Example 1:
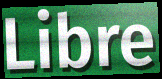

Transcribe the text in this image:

Libre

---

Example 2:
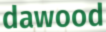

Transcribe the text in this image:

dawood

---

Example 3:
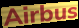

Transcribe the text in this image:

Airbus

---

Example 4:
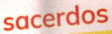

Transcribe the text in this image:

sacerdos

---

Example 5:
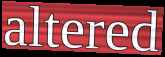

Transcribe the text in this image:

altered